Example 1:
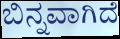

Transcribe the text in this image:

ಬಿನ್ನವಾಗಿದೆ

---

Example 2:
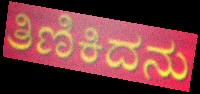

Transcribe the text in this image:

ತಿಣಿಕಿದನು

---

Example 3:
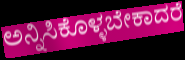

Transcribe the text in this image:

ಅನ್ನಿಸಿಕೊಳ್ಳಬೇಕಾದರೆ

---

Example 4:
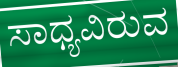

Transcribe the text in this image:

ಸಾಧ್ಯವಿರುವ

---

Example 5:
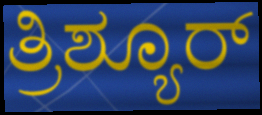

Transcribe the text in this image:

ತ್ರಿಶ್ಯೂರ್